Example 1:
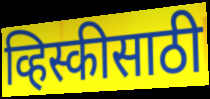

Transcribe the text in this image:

व्हिस्कीसाठी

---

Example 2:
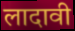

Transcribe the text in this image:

लादावी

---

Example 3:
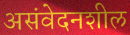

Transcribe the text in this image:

असंवेदनशील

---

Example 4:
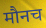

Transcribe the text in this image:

मौनच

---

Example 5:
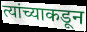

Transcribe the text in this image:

त्यांच्याकडून